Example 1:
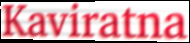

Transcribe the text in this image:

Kaviratna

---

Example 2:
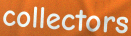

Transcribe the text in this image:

collectors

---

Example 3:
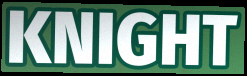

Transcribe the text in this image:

KNIGHT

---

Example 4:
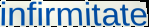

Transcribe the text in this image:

infirmitate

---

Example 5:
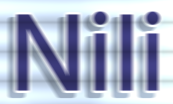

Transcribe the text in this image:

Nili